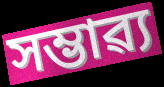
সম্ভাৱ্য